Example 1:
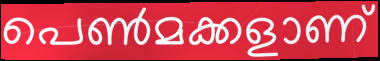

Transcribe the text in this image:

പെൺമക്കളാണ്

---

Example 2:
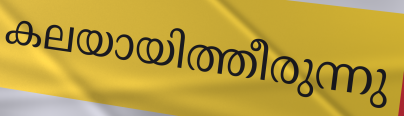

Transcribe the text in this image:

കലയായിത്തീരുന്നു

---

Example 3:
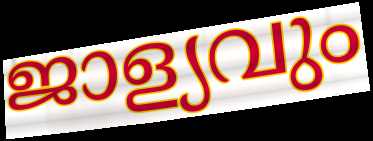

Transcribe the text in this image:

ജാള്യവും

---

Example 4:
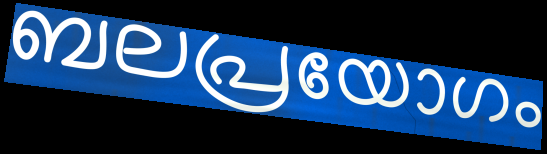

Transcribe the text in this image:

ബലപ്രയോഗം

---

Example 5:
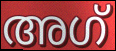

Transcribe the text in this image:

അഗ്